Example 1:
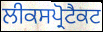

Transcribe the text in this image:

ਲੀਕਸਪ੍ਰੋਟੈਕਟ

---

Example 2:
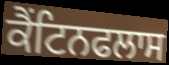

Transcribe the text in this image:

ਕੈਂਟਿਨਫਲਾਸ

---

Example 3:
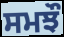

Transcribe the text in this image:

ਸਮਝੌ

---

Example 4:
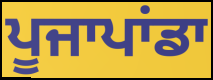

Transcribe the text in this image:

ਪੂਜਾਪਾਂਡਾ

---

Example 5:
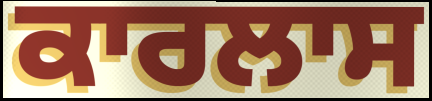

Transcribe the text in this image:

ਕਾਰਲਾਸ